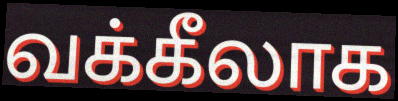
வக்கீலாக